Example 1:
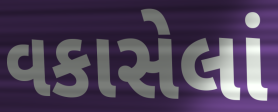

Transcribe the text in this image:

વકાસેલાં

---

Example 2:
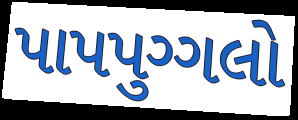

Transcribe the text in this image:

પાપપુગ્ગલો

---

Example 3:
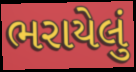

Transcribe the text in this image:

ભરાયેલું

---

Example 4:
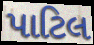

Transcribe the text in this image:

પાટિલ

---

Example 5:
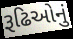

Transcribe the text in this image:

રૂઢિઓનું